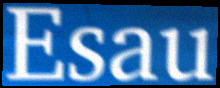
Esau